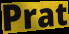
Prat